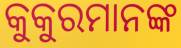
କୁକୁରମାନଙ୍କ